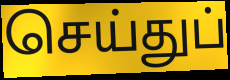
செய்துப்